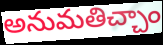
అనుమతిచ్చాం